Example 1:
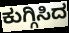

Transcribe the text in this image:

ಕುಗ್ಗಿಸಿದ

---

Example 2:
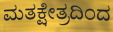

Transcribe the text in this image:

ಮತಕ್ಷೇತ್ರದಿಂದ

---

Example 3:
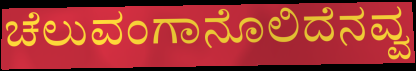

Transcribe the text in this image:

ಚೆಲುವಂಗಾನೊಲಿದೆನವ್ವ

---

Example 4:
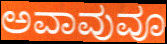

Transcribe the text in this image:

ಅವಾವುವೂ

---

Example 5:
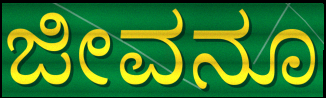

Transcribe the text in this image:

ಜೀವನೂ